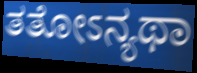
ತತೋಽನ್ಯಥಾ